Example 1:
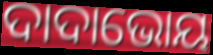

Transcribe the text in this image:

ଦାଦାଭୋୟ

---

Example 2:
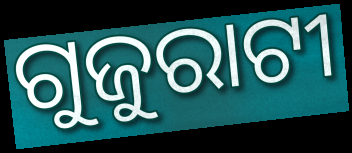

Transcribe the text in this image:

ଗୁଜୁରାଟୀ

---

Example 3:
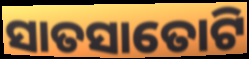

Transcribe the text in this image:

ସାତସାତୋଟି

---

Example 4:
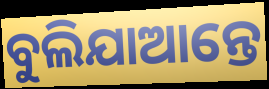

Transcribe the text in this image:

ବୁଲିଯାଆନ୍ତେ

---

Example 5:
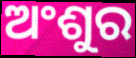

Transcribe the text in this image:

ଅଂଶୁର